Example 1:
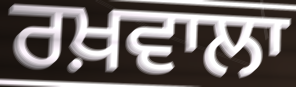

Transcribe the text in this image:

ਰਖ਼ਵਾਲਾ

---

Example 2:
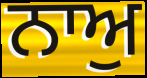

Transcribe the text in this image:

ਨਾਅੁ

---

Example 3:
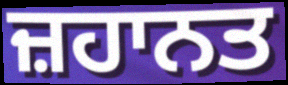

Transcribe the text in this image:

ਜ਼ਹਾਨਤ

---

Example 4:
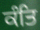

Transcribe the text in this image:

ਕੰਤਿ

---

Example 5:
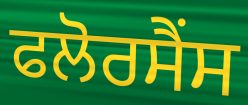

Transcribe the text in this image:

ਫਲੋਰਸੈਂਸ